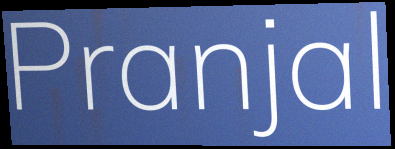
Pranjal